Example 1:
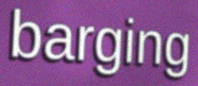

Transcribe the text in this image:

barging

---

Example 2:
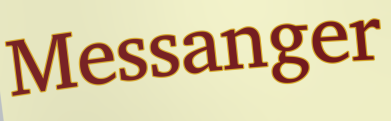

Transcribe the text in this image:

Messanger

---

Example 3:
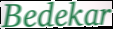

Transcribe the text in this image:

Bedekar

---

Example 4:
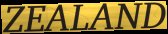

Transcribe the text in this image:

ZEALAND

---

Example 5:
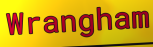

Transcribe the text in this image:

Wrangham